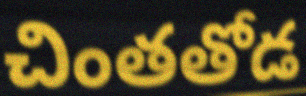
చింతతోడ